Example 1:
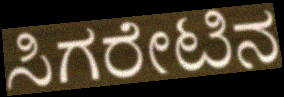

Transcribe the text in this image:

ಸಿಗರೇಟಿನ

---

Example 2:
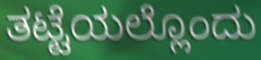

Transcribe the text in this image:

ತಟ್ಟೆಯಲ್ಲೊಂದು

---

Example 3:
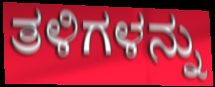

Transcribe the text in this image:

ತಳಿಗಳನ್ನು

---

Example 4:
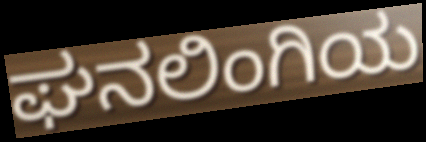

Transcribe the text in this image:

ಘನಲಿಂಗಿಯ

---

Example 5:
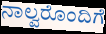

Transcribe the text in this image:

ನಾಲ್ವರೊಂದಿಗೆ